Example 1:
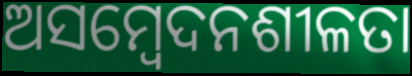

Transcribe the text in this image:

ଅସମ୍ବେଦନଶୀଳତା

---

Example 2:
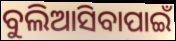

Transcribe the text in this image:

ବୁଲିଆସିବାପାଇଁ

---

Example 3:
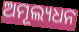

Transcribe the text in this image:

ଅମୂଲ୍ୟଧନ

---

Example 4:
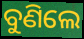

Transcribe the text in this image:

ବୁଣିଲେ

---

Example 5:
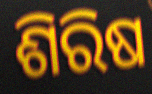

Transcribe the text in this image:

ଶିରିଷ